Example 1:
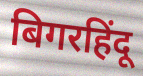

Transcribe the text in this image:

बिगरहिंदू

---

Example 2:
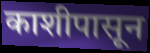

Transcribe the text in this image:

काशीपासून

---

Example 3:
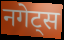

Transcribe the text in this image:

नगेट्स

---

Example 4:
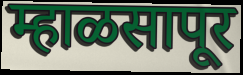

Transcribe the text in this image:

म्हाळसापूर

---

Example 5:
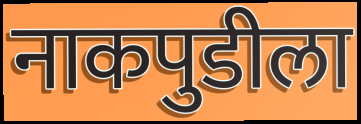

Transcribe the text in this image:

नाकपुडीला